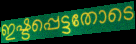
ഇഷ്ടപ്പെട്ടതോടെ